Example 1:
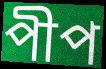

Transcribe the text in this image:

পীপ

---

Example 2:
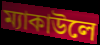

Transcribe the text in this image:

ম্যাকাউলে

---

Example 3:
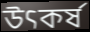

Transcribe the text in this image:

উৎকর্ষ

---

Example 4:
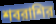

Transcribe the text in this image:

শবরাশির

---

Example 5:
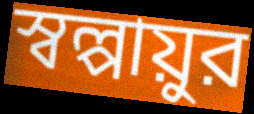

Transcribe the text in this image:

স্বল্পায়ুর